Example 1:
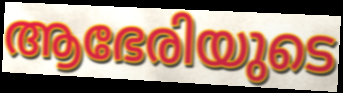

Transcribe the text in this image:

ആഭേരിയുടെ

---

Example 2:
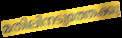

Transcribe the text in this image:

മതിലിനടുത്തേക്കു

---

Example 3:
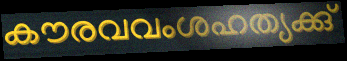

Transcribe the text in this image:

കൗരവവംശഹത്യക്കു്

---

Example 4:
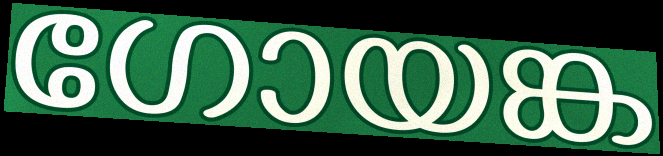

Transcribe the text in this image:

ഗോയങ്ക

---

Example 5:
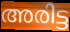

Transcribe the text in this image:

അരിട്ട